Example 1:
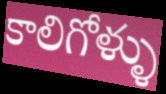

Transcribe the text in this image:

కాలిగోళ్ళు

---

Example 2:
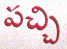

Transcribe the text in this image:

పచ్చి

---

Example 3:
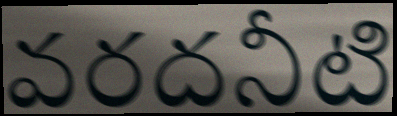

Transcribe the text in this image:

వరదనీటి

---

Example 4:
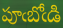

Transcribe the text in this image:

పూఁబోఁడి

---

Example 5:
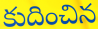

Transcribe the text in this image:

కుదించిన